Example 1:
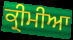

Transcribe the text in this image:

ਕ੍ਰੀਮੀਆ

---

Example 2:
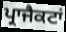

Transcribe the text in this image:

ਪ੍ਰਾਜੈਕਟਾਂ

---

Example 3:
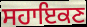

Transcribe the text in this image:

ਸਹਾਇਕਣ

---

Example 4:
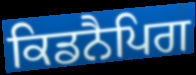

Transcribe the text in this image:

ਕਿਡਨੈਪਿਗ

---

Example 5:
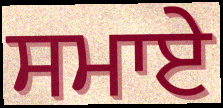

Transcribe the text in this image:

ਸਮਾਏ